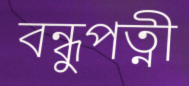
বন্ধুপত্নী